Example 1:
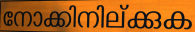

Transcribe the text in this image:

നോക്കിനില്ക്കുക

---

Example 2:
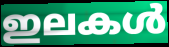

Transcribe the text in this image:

ഇലകൾ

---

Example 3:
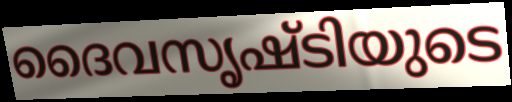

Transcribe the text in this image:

ദൈവസൃഷ്ടിയുടെ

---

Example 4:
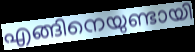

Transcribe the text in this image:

എങ്ങിനെയുണ്ടായി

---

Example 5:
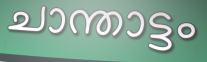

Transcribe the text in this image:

ചാന്താട്ടം